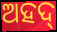
ଅହଦ୍